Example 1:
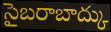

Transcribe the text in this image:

సైబరాబాద్కు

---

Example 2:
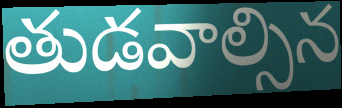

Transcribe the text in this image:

తుడవాల్సిన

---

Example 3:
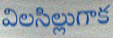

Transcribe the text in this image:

విలసిల్లుగాక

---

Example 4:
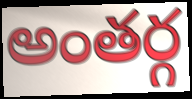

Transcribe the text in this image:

అంతర్గ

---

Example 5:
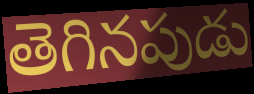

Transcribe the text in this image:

తెగినపుడు